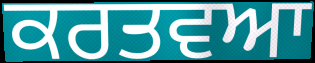
ਕਰਤਵਆ